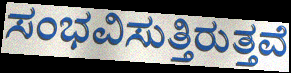
ಸಂಭವಿಸುತ್ತಿರುತ್ತವೆ